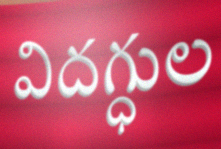
విదగ్ధుల